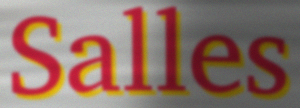
Salles